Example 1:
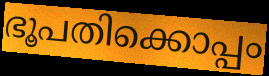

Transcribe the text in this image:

ഭൂപതിക്കൊപ്പം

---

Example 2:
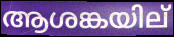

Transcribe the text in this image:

ആശങ്കയില്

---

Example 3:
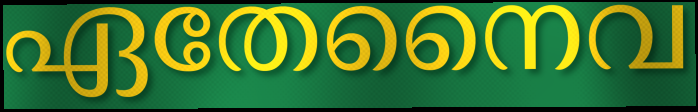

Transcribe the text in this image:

ഏതേനൈവ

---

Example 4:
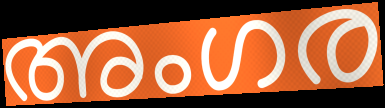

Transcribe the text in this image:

അംഗര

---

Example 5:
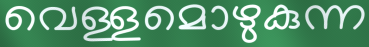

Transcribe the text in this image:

വെള്ളമൊഴുകുന്ന